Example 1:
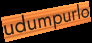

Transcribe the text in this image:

udumpurlo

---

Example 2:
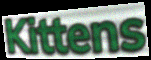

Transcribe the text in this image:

Kittens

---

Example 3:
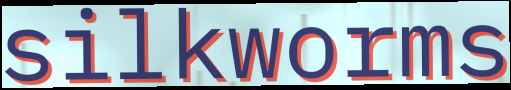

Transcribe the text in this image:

silkworms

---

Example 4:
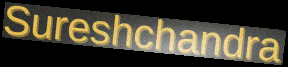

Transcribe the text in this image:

Sureshchandra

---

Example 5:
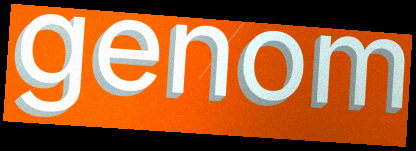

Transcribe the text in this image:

genom